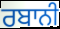
ਰਬਾਨੀ